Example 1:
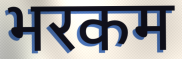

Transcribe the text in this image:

भरकम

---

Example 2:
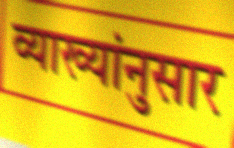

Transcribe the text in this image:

व्याख्यांनुसार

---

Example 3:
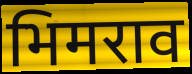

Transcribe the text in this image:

भिमराव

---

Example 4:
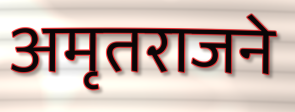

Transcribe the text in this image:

अमृतराजने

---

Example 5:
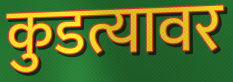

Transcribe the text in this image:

कुडत्यावर